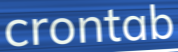
crontab